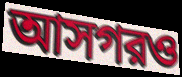
আসগরও